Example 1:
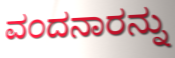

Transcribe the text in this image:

ವಂದನಾರನ್ನು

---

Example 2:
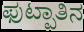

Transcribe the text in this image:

ಫುಟ್ಪಾತಿನ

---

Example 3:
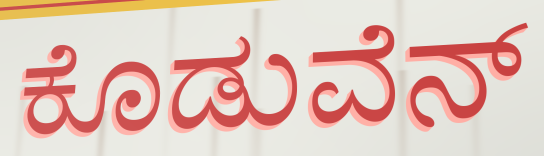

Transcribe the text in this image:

ಕೊಡುವೆನ್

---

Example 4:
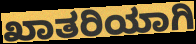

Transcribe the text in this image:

ಖಾತರಿಯಾಗಿ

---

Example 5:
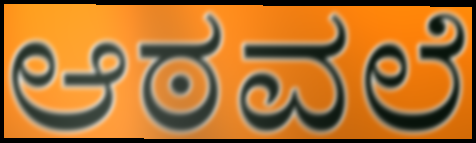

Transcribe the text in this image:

ಆಠವಲೆ